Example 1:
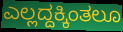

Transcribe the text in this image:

ಎಲ್ಲದ್ದಕ್ಕಿಂತಲೂ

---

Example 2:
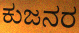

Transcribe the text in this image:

ಕುಜನರ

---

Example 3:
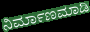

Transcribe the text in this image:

ನಿರ್ಮಾಣಮಾಡಿ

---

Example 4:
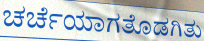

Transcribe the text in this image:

ಚರ್ಚೆಯಾಗತೊಡಗಿತು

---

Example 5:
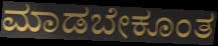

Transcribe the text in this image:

ಮಾಡಬೇಕೂಂತ